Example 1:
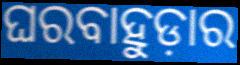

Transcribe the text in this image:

ଘରବାହୁଡ଼ାର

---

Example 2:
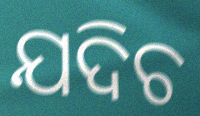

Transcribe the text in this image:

ଯଦିଚ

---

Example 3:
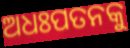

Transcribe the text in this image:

ଅଧଃପତନକୁ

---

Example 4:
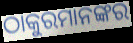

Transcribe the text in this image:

ଠାକୁରମାନଙ୍କର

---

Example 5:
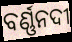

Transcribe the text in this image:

ବର୍ଣ୍ଣନଦୀ